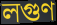
লগুণ